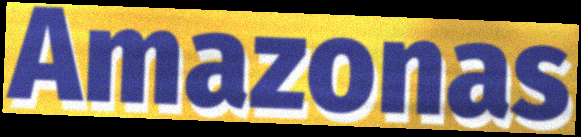
Amazonas